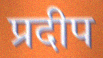
प्रदीप